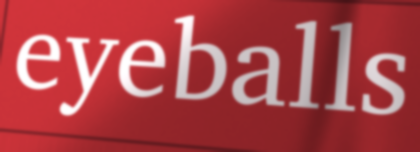
eyeballs